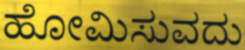
ಹೋಮಿಸುವದು